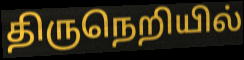
திருநெறியில்